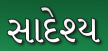
સાદેશ્ય